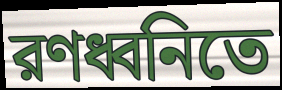
রণধ্বনিতে